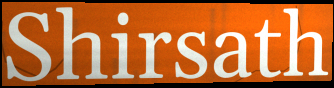
Shirsath